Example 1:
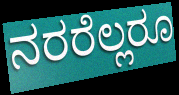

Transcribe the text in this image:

ನರರೆಲ್ಲರೂ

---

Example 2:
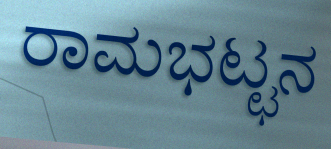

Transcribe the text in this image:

ರಾಮಭಟ್ಟನ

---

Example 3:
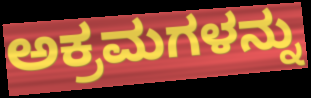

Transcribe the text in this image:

ಅಕ್ರಮಗಳನ್ನು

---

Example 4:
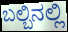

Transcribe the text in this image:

ಬಲ್ಬಿನಲ್ಲಿ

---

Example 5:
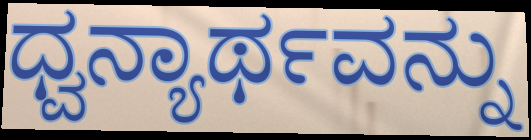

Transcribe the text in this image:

ಧ್ವನ್ಯಾರ್ಥವನ್ನು